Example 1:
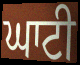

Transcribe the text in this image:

ਘਾਟੀ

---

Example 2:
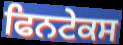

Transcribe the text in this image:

ਫਿਨਟੇਕਸ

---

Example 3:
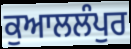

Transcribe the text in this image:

ਕੁਆਲਲੰਪੁਰ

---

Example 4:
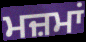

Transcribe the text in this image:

ਮਜ਼ਮਾਂ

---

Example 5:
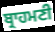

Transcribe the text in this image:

ਬ੍ਰਾਹਮਣੀ